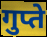
गुप्ते